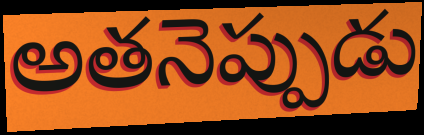
అతనెప్పుడు